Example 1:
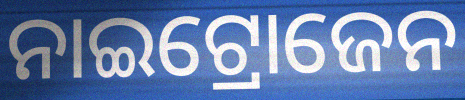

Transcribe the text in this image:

ନାଇଟ୍ରୋଜେନ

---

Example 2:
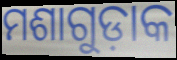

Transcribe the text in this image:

ମଶାଗୁଡ଼ାକ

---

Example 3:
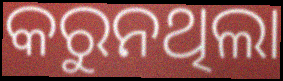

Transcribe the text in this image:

କରୁନଥିଲା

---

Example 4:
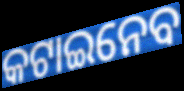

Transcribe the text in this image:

କଟାଇନେବ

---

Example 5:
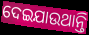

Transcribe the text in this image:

ଦେଇଯାଉଥାନ୍ତି